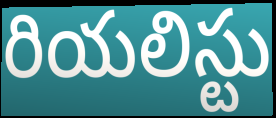
రియలిస్టు